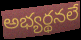
అభ్యర్థనలే